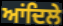
ਆਂਦਿਲੇ